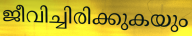
ജീവിച്ചിരിക്കുകയും